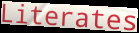
Literates